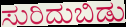
ಸುರಿದುಬಿಡು